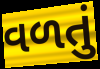
વળતું